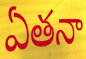
ఏతనా